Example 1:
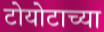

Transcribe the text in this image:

टोयोटाच्या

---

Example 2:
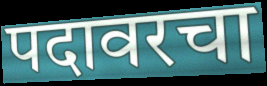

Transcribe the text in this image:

पदावरचा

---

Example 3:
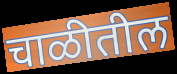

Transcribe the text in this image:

चाळीतील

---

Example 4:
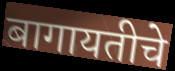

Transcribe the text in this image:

बागायतीचे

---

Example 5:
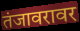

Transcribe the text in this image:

तंजावरावर